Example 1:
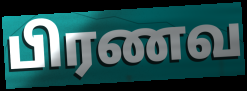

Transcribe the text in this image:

பிரணவ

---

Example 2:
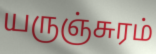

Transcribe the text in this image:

யருஞ்சுரம்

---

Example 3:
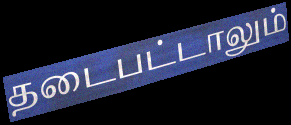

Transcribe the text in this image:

தடைபட்டாலும்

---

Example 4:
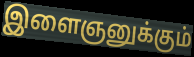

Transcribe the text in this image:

இளைஞனுக்கும்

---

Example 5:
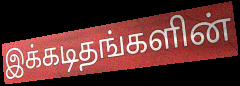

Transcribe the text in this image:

இக்கடிதங்களின்